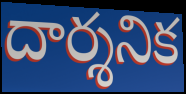
దార్శనిక